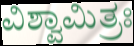
ವಿಶ್ವಾಮಿತ್ರಃ